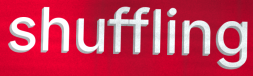
shuffling